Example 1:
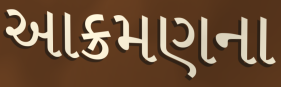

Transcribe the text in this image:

આક્રમણના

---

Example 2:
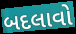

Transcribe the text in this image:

બદલાવો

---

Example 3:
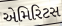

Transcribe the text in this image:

એમિરિટસ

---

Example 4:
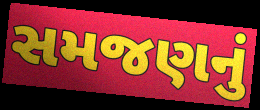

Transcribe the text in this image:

સમજણનું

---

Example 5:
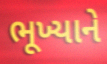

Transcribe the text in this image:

ભૂખ્યાને